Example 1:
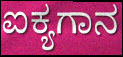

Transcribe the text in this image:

ಐಕ್ಯಗಾನ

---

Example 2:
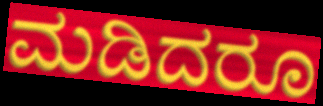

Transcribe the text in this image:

ಮಡಿದರೂ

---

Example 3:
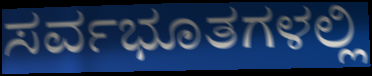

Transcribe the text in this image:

ಸರ್ವಭೂತಗಳಲ್ಲಿ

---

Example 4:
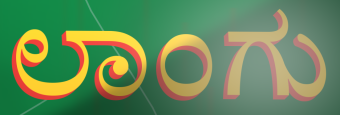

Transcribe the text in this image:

ಲಾಂಗು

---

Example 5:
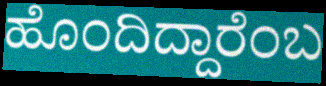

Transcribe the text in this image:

ಹೊಂದಿದ್ದಾರೆಂಬ